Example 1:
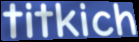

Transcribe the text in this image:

titkich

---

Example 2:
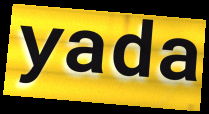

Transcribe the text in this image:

yada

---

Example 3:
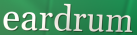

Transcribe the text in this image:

eardrum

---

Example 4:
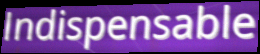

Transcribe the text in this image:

Indispensable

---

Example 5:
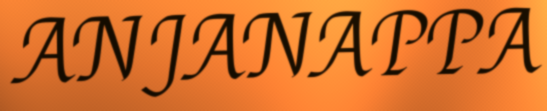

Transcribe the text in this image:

ANJANAPPA